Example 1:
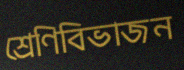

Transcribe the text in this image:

শ্রেণিবিভাজন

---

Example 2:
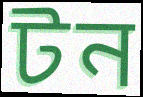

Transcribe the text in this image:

টন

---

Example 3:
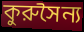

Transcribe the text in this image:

কুরুসৈন্য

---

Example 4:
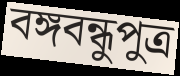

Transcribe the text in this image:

বঙ্গবন্ধুপুত্র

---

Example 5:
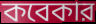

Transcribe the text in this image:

কবেকার